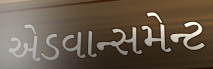
એડવાન્સમેન્ટ